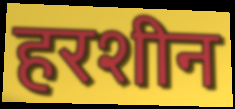
हरशीन